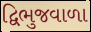
દ્વિભુજવાળા